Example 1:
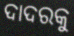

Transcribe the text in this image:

ଦାଦରକୁ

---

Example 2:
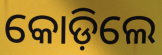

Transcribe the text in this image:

କୋଡ଼ିଲେ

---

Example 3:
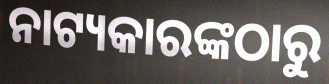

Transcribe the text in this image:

ନାଟ୍ୟକାରଙ୍କଠାରୁ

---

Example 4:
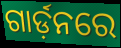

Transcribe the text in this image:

ଗାର୍ଡ଼ନରେ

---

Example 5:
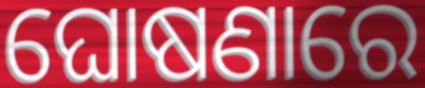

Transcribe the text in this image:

ଘୋଷଣାରେ